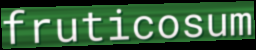
fruticosum